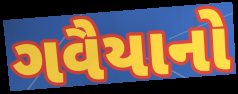
ગવૈયાનો